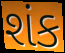
શંક